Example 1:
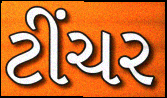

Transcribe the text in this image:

ટીંચર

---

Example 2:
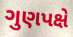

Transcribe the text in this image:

ગુણપક્ષે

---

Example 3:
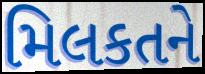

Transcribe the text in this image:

મિલકતને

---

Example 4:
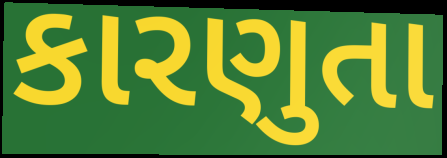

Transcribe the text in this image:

કારણુતા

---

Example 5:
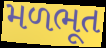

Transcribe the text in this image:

મળભૂત